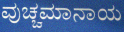
ವುಚ್ಚಮಾನಾಯ